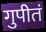
गुपीतं